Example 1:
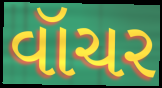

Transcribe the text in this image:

વૉચર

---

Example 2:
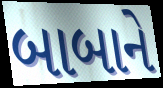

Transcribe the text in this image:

બાબાને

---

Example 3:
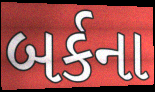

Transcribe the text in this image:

બર્કના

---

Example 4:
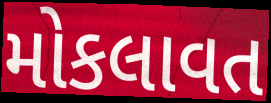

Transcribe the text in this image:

મોકલાવત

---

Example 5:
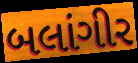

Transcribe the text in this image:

બલાંગીર